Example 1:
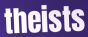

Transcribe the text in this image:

theists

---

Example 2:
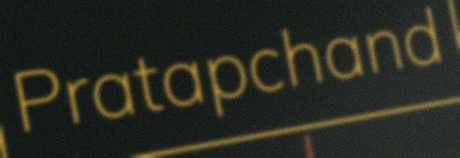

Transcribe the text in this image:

Pratapchand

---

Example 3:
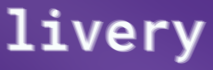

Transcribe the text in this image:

livery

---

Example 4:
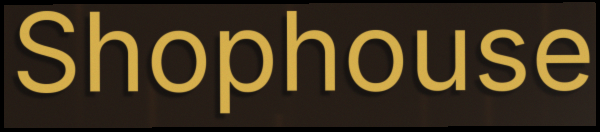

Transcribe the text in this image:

Shophouse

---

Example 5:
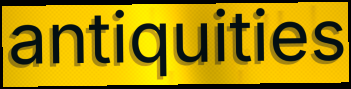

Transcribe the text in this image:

antiquities